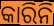
କାରିନି